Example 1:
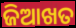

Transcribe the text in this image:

ଜିଆଖତ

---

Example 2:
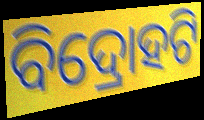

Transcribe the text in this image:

ବିଦ୍ରୋହଟି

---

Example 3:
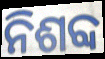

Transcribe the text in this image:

ନିଶବ୍ଦ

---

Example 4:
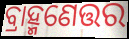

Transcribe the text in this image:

ବ୍ରାହ୍ମଣେତ୍ତର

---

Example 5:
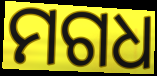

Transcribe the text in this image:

ମଗଧ